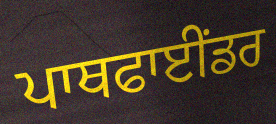
ਪਾਥਫਾਈਂਡਰ